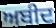
ਅਬੀਦ